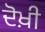
ਦੋਖ਼ੀ